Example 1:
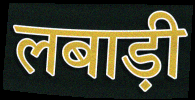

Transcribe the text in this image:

लबाड़ी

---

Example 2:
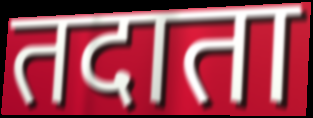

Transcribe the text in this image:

तदाता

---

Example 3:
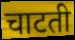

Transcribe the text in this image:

चाटती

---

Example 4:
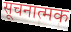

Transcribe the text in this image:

सूचनात्मक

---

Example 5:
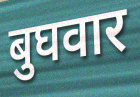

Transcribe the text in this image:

बुघवार